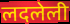
लदलेली